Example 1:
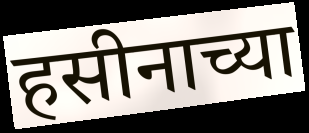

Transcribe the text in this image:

हसीनाच्या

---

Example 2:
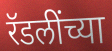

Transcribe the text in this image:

रॅडलींच्या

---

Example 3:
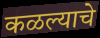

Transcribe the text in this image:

कळल्याचे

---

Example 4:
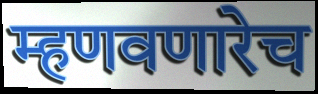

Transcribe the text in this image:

म्हणवणारेच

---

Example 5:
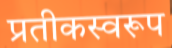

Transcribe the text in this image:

प्रतीकस्वरूप